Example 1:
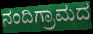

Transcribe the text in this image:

ನಂದಿಗ್ರಾಮದ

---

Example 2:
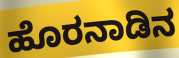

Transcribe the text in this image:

ಹೊರನಾಡಿನ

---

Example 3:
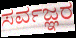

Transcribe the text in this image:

ಸರ್ವಜ್ಞರ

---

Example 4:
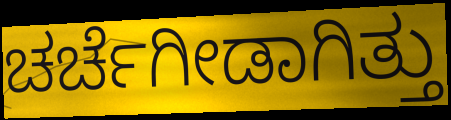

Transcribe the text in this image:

ಚರ್ಚೆಗೀಡಾಗಿತ್ತು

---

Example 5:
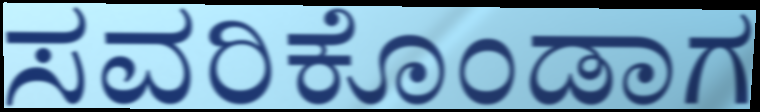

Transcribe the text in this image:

ಸವರಿಕೊಂಡಾಗ